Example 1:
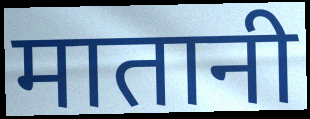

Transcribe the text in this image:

मातानी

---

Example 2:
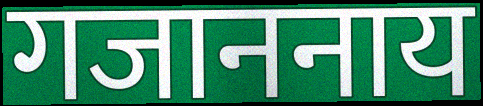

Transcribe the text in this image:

गजाननाय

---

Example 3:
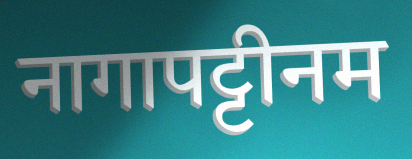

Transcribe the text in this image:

नागापट्टीनम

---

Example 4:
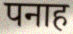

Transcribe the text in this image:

पनाह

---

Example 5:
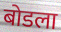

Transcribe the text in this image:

बोडला